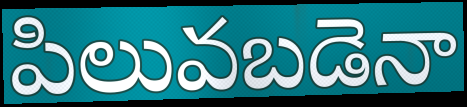
పిలువబడెనా